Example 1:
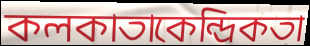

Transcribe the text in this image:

কলকাতাকেন্দ্রিকতা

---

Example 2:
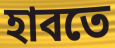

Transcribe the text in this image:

হাবতে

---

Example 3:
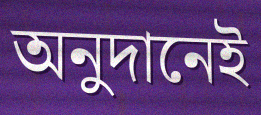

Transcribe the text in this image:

অনুদানেই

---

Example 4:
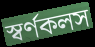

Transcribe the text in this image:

স্বর্ণকলস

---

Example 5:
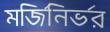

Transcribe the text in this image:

মর্জিনির্ভর